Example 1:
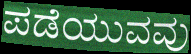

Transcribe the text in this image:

ಪಡೆಯುವವು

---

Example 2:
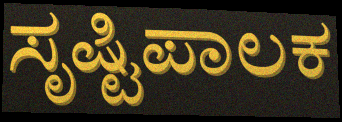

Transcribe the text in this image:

ಸೃಷ್ಟಿಪಾಲಕ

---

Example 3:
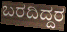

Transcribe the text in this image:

ಬರದಿದ್ದರ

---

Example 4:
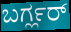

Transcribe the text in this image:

ಬರ್ಗ್ಲರ್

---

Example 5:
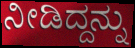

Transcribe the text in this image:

ನೀಡಿದ್ದನ್ನು